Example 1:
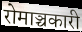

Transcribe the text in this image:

रोमाञ्चकारी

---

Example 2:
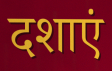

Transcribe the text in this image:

दशाएं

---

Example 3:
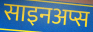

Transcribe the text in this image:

साइनअप्स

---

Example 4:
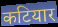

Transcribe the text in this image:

कटियार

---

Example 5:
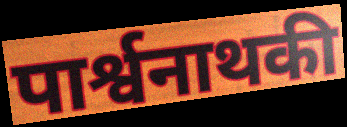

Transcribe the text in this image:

पार्श्वनाथकी